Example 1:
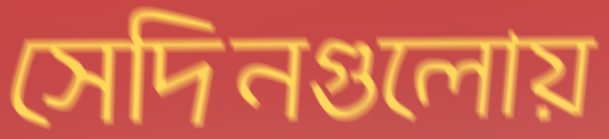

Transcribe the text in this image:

সেদিনগুলোয়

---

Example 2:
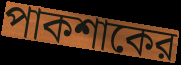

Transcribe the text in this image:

পাকশাকের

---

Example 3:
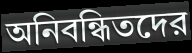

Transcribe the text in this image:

অনিবন্ধিতদের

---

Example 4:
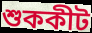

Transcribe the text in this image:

শুককীট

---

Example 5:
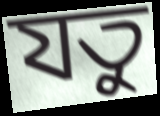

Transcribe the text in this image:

যতু